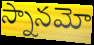
స్నానమో